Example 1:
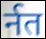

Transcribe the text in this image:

र्नत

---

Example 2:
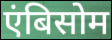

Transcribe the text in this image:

एंबिसोम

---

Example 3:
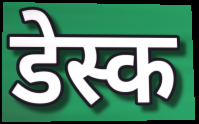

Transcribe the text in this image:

डेस्क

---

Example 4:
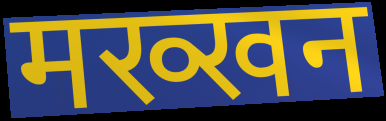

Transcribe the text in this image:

मख्खन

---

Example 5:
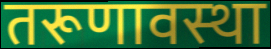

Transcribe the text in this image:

तरूणावस्था